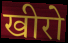
खीरो